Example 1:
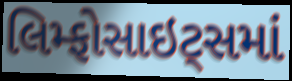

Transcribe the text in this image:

લિમ્ફોસાઇટ્સમાં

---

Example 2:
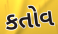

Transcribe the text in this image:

કતોવ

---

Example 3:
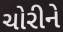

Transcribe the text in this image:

ચોરીને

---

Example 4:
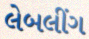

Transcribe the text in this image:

લેબલીંગ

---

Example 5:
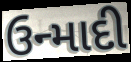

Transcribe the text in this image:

ઉન્માદી